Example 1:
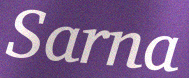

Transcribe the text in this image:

Sarna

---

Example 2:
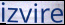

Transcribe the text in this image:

izvire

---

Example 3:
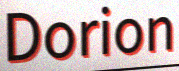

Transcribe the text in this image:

Dorion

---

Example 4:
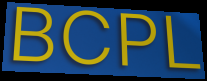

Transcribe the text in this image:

BCPL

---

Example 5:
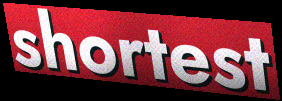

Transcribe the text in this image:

shortest